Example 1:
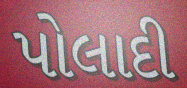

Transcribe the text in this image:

પોલાદી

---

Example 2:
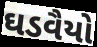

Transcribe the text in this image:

ઘડવૈયો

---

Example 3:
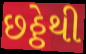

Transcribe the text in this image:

છઠ્ઠેથી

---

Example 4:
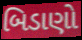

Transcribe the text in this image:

બિડાણો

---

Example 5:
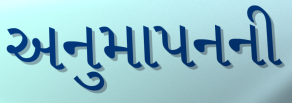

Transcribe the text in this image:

અનુમાપનની